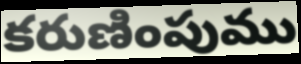
కరుణింపుము